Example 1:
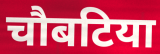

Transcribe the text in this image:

चौबटिया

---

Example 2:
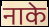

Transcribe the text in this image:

नाके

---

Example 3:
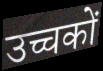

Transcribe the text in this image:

उच्चकों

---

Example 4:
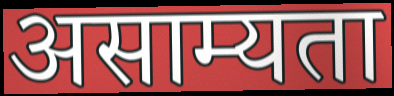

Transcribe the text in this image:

असाम्यता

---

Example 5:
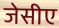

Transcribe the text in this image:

जेसीए